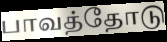
பாவத்தோடு